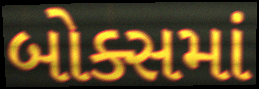
બોક્સમાં